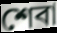
শেবা